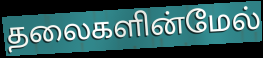
தலைகளின்மேல்